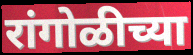
रांगोळीच्या